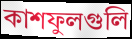
কাশফুলগুলি